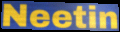
Neetin